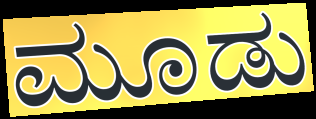
ಮೂಡು